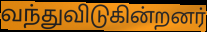
வந்துவிடுகின்றனர்